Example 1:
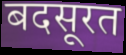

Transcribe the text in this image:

बदसूरत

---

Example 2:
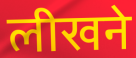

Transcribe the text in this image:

लीखने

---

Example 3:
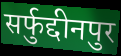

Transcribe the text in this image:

सर्फुद्दीनपुर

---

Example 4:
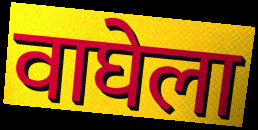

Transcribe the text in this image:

वाघेला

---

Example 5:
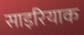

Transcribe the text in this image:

साइरियाक